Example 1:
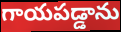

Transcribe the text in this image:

గాయపడ్డాను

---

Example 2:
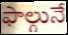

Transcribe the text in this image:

ఫాల్గునే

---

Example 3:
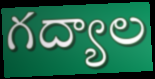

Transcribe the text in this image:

గద్యాల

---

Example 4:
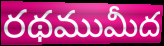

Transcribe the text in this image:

రథముమీద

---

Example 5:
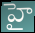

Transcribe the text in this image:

హై